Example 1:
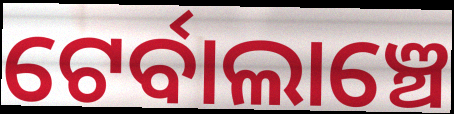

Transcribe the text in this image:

ଟେର୍ବାଲାଞ୍ଚେ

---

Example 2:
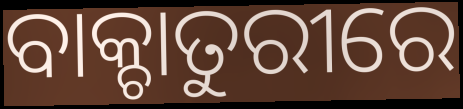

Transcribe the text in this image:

ବାକ୍ଚାତୁରୀରେ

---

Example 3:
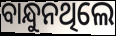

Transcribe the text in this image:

ବାନ୍ଧୁନଥିଲେ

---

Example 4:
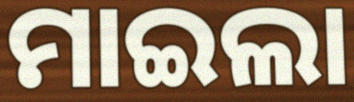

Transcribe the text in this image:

ମାଇଲା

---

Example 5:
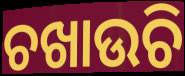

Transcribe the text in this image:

ଚଖାଉଚି